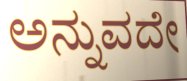
ಅನ್ನುವದೇ